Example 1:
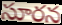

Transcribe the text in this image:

సూరన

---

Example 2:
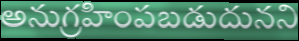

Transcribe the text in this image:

అనుగ్రహింపబడుదునని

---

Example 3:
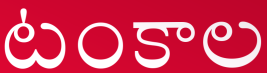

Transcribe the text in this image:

టంకాల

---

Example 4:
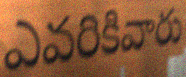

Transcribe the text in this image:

ఎవరికివారు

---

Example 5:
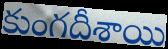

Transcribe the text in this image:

కుంగదీశాయి